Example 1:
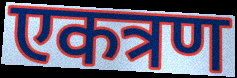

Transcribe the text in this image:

एकत्रण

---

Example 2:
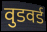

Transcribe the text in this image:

वुडवर्ड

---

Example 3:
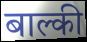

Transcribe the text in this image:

बाल्‍की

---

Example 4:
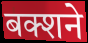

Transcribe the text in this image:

बक्शने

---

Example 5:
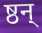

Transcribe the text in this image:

ष्ठन्